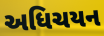
અધિચયન